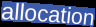
allocation